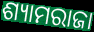
ଶ୍ୟାମରାଜା